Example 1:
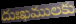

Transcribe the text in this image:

దుఃఖములకు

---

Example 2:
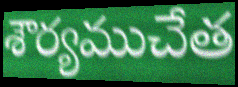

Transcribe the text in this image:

శౌర్యముచేత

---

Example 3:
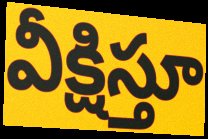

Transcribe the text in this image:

వీక్షిస్తూ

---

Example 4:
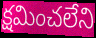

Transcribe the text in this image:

క్షమించలేని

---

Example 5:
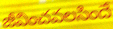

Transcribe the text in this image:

జీవించవలసిందే